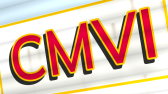
CMVI